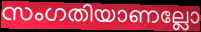
സംഗതിയാണല്ലോ